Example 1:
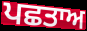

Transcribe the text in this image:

ਪਛਤਾਅ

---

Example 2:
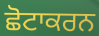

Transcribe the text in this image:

ਛੋਟਾਕਰਨ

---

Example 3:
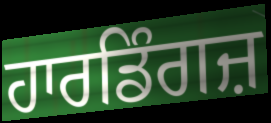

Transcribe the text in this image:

ਹਾਰਡਿੰਗਜ਼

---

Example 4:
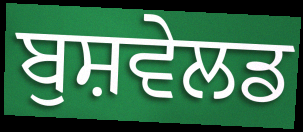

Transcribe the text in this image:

ਬੁਸ਼ਵੇਲਡ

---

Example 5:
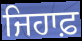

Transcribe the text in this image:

ਜਿਹਾਫ਼